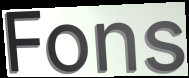
Fons